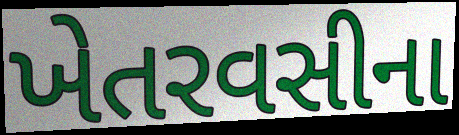
ખેતરવસીના